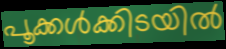
പൂക്കൾക്കിടയിൽ